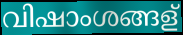
വിഷാംശങ്ങള്